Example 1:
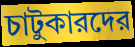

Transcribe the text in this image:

চাটুকারদের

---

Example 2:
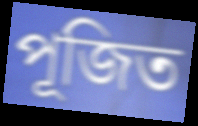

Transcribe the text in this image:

পূজিত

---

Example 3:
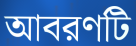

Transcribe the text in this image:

আবরণটি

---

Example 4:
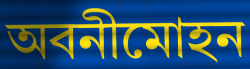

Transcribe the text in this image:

অবনীমোহন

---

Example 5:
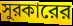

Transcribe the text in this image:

সুরকারের